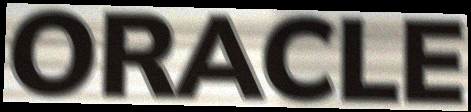
ORACLE